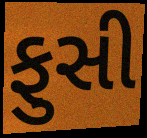
ફુસી